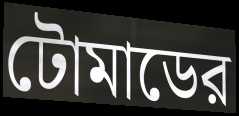
টোমাডের